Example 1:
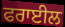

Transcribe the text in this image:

ਫਰਾਈਲ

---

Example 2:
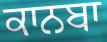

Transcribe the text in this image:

ਕਾਨਬਾ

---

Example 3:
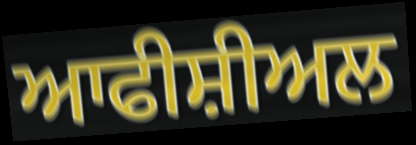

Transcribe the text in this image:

ਆਫੀਸ਼ੀਅਲ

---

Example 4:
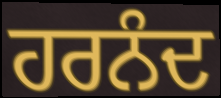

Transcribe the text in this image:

ਹਰਨੰਦ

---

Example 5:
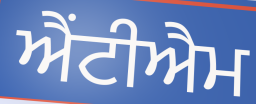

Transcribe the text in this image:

ਐਂਟੀਐਮ